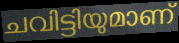
ചവിട്ടിയുമാണ്